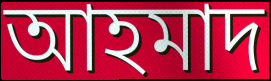
আহমাদ